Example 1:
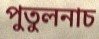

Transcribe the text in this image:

পুতুলনাচ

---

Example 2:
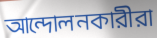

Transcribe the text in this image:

আন্দোলনকারীরা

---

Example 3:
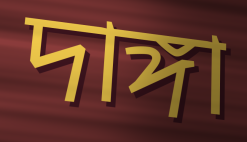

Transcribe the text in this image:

দাঙ্গা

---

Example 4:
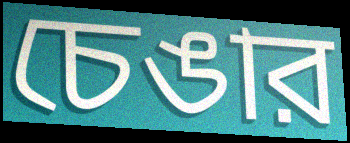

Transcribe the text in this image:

চেঙার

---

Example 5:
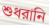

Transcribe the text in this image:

শুধরানি